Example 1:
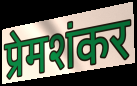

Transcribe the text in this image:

प्रेमशंकर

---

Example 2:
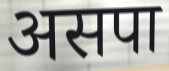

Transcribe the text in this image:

असपा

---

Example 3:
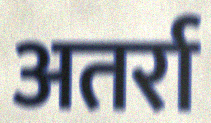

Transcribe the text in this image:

अतर्रा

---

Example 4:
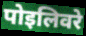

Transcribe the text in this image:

पोइलिवरे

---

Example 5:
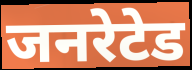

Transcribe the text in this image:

जनरेटेड